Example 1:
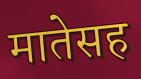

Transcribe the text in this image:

मातेसह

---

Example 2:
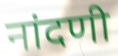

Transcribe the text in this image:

नांदणी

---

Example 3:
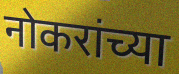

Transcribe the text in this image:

नोकरांच्या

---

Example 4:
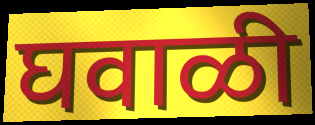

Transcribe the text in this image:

घवाळी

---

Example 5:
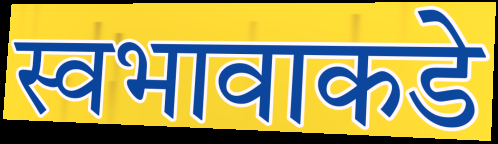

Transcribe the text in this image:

स्वभावाकडे